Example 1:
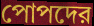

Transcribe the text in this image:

পোপদের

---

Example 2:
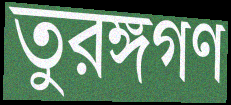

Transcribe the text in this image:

তুরঙ্গগণ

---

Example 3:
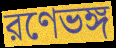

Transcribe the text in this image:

রণেভঙ্গ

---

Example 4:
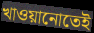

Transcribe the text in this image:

খাওয়ানোতেই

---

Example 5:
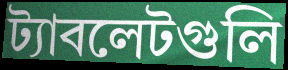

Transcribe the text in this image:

ট্যাবলেটগুলি